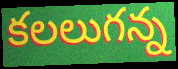
కలలుగన్న